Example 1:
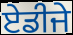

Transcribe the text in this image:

ਏਡੀਜੇ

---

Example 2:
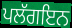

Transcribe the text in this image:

ਪਲੱਗਇਨ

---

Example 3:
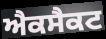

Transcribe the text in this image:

ਐਕਸੈਕਟ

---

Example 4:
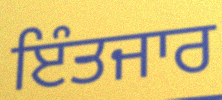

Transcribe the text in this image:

ਇੰਤਜਾਰ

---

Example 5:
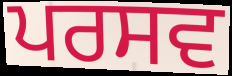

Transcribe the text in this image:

ਪਰਸਵ